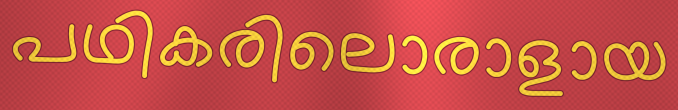
പഥികരിലൊരാളായ